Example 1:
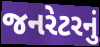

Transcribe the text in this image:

જનરેટરનું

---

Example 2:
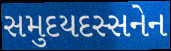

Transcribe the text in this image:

સમુદયદસ્સનેન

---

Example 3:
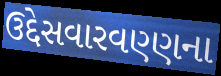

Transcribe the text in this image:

ઉદ્દેસવારવણ્ણના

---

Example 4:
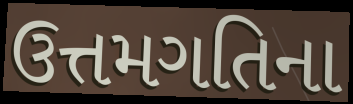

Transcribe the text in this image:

ઉત્તમગતિના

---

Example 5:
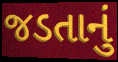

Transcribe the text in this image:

જડતાનું